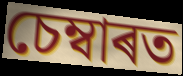
চেম্বাৰত